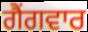
ਗੈਂਗਵਾਰ